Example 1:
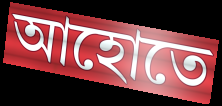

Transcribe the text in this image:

আহোতে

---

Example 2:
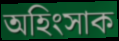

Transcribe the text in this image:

অহিংসাক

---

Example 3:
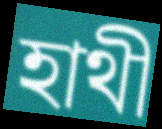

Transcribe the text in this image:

হাথী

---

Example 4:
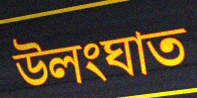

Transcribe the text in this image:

উলংঘাত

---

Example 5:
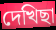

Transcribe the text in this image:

দেখিছা